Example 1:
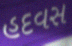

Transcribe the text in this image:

હદવસ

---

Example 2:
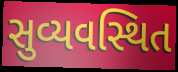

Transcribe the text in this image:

સુવ્યવસ્થિત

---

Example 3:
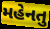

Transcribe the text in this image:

મહેનતુ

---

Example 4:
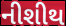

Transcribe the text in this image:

નીશીથ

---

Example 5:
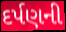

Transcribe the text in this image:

દર્પણની